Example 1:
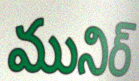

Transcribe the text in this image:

మునిర్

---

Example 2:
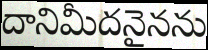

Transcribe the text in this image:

దానిమీదనైనను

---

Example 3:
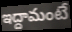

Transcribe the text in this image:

ఇద్దామంటే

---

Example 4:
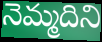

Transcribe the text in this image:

నెమ్మదిని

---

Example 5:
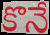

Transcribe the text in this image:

కొనే